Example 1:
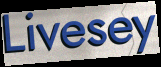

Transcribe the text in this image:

Livesey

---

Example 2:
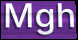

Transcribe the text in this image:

Mgh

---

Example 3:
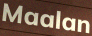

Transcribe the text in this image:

Maalan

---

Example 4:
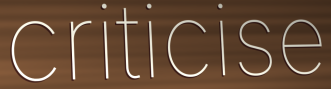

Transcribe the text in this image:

criticise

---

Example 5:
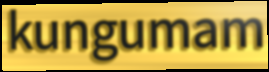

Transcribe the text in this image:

kungumam